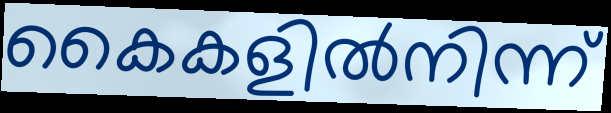
കൈകളിൽനിന്ന്